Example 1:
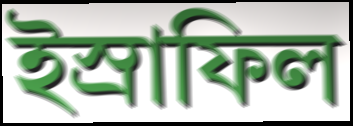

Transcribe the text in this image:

ইস্রাফিল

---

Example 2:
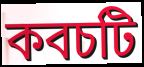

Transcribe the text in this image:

কবচটি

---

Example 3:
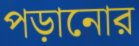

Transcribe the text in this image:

পড়ানোর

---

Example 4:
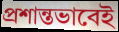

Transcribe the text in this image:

প্রশান্তভাবেই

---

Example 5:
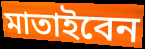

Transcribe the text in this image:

মাতাইবেন